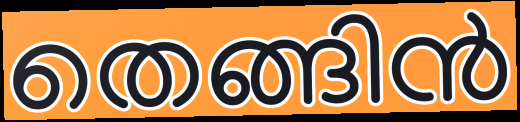
തെങ്ങിൻ